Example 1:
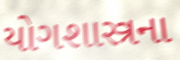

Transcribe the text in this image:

યોગશાસ્ત્રના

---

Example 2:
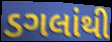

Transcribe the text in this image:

ડગલાંથી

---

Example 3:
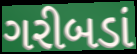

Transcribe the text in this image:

ગરીબડાં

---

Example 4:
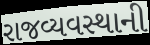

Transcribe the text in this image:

રાજવ્યવસ્થાની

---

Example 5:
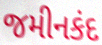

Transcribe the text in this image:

જમીનકંદ